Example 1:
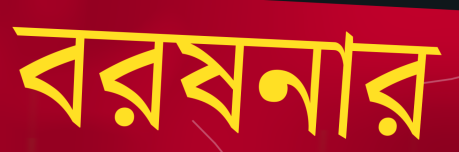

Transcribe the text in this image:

বরষনার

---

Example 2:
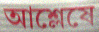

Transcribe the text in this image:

আশ্লেষে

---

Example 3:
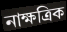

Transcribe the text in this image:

নাক্ষত্রিক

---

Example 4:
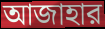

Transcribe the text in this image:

আজাহার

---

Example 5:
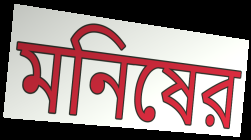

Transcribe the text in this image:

মনিষের